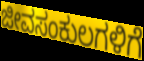
ಜೀವಸಂಕುಲಗಳಿಗೆ